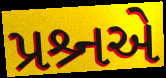
પ્રશ્ર્નએ